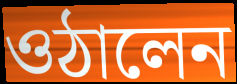
ওঠালেন